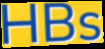
HBs